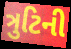
ત્રુટિની